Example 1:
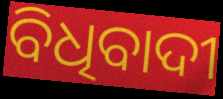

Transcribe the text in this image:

ବିଧିବାଦୀ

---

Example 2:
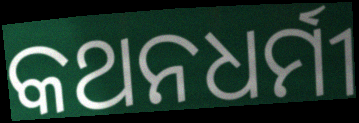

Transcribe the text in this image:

କଥନଧର୍ମୀ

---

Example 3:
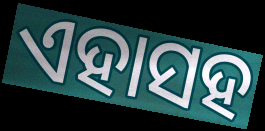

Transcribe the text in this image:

ଏହାସହ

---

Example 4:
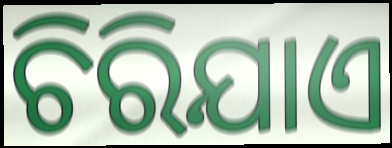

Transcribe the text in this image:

ଚିରିଯାଏ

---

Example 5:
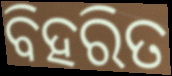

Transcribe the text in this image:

ବିହରିତ